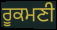
ਰੂਕਮਣੀ